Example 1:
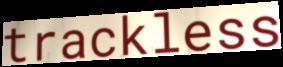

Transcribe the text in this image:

trackless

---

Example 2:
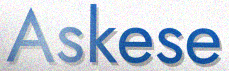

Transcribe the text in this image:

Askese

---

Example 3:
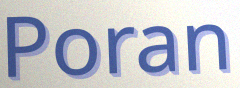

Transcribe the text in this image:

Poran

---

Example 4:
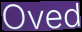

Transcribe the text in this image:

Oved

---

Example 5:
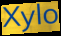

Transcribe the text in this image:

Xylo